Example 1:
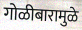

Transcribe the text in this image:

गोळीबारामुळे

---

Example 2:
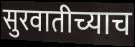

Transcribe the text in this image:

सुरवातीच्याच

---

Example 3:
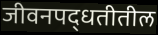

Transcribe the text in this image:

जीवनपद्धतीतील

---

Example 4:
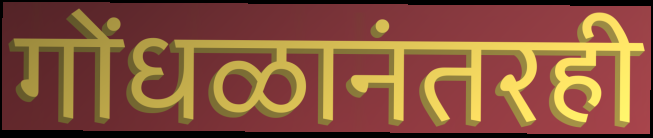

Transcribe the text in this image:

गोंधळानंतरही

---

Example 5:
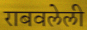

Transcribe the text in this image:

राबवलेली